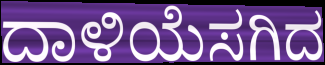
ದಾಳಿಯೆಸಗಿದ